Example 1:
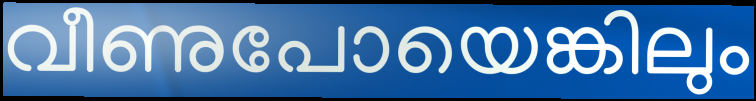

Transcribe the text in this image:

വീണുപോയെങ്കിലും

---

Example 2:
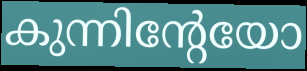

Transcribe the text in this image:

കുന്നിന്റേയോ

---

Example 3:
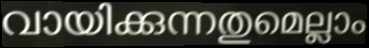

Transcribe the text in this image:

വായിക്കുന്നതുമെല്ലാം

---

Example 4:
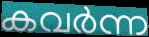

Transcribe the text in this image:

കവർന്ന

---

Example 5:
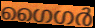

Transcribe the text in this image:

ഗൈഗർ